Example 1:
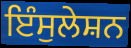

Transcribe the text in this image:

ਇੰਸੁਲੇਸ਼ਨ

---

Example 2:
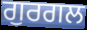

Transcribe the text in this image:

ਗੁਰਗਲ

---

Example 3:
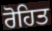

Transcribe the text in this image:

ਰੋਹਿਤ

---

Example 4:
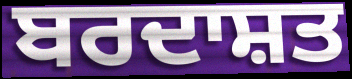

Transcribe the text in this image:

ਬਰਦਾਸ਼ਤ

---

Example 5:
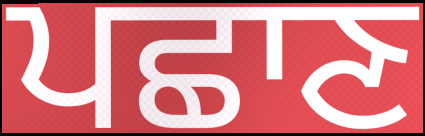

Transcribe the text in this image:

ਪਛਾਣ